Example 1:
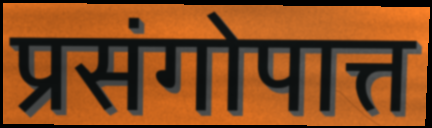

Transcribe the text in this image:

प्रसंगोपात्त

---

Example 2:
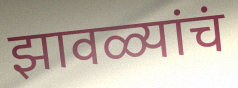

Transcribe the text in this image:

झावळ्यांचं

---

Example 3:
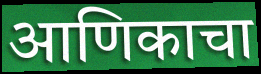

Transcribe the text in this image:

आणिकाचा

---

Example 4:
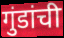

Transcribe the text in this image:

गुंडांची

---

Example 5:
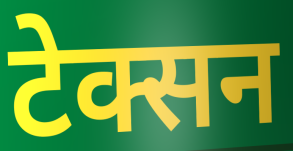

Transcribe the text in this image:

टेक्सन